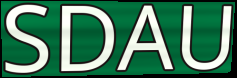
SDAU